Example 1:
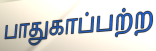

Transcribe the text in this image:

பாதுகாப்பற்ற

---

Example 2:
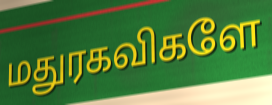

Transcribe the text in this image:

மதுரகவிகளே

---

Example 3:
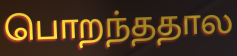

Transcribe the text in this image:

பொறந்ததால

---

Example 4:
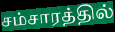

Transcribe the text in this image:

சம்சாரத்தில்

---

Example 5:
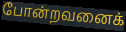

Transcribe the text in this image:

போன்றவனைக்